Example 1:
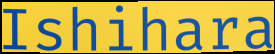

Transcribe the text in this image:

Ishihara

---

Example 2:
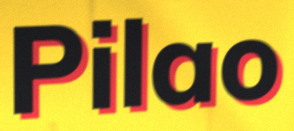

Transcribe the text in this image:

Pilao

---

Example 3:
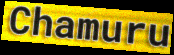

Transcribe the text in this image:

Chamuru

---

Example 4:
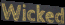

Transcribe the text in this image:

Wicked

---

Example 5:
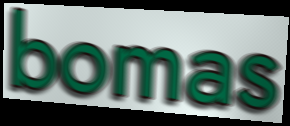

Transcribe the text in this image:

bomas